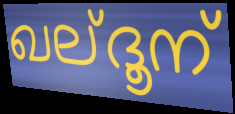
ഖല്ദൂന്